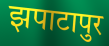
झपाटापुर